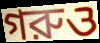
গৰুও